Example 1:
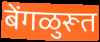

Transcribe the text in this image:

बेंगळुरूत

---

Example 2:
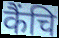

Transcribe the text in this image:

कैंचि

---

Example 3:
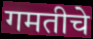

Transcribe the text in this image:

गमतीचे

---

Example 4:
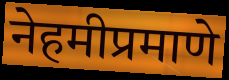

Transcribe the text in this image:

नेहमीप्रमाणे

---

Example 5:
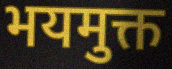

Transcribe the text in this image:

भयमुक्त